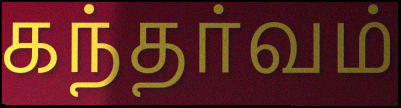
கந்தர்வம்